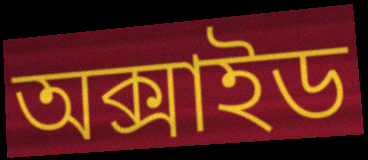
অক্সাইড